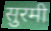
सुरमी